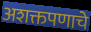
अशक्तपणाचे